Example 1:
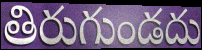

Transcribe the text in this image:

తిరుగుండదు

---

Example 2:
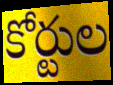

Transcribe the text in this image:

కోర్టుల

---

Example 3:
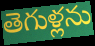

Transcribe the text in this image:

తెగుళ్లను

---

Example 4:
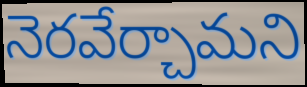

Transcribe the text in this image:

నెరవేర్చామని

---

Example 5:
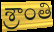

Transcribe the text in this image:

శ్రాంతి